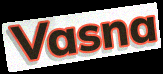
Vasna